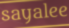
sayalee